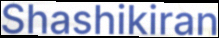
Shashikiran